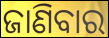
ଜାଣିବାର